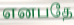
எனபதே